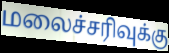
மலைச்சரிவுக்கு